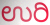
ಉರಿ